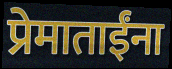
प्रेमाताईंना